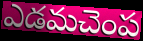
ఎడమచెంప